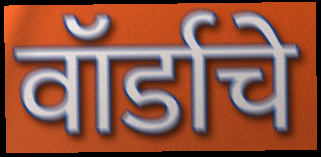
वॉर्डाचे